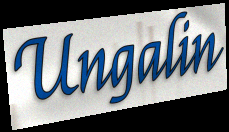
Ungalin